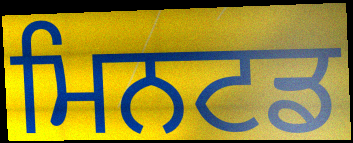
ਮਿਨਟਡ